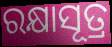
ରକ୍ଷାସୂତ୍ର